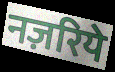
नज़रिये